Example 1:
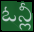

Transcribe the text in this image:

ఓన్లీ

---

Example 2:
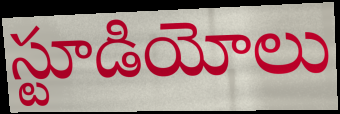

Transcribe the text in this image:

స్టూడియోలు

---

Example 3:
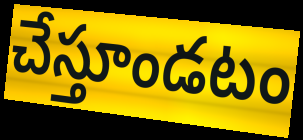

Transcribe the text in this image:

చేస్తూండటం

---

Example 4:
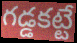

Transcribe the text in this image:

గడ్డకట్టే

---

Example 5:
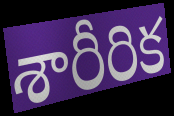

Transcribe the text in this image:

శారీరిక